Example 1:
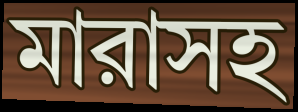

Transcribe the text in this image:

মারাসহ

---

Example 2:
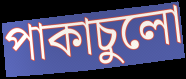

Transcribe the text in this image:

পাকাচুলো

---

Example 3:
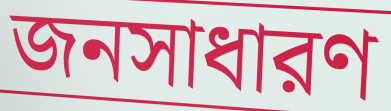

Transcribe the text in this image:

জনসাধারণ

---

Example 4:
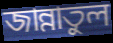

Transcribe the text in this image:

জান্নাতুল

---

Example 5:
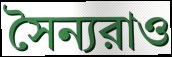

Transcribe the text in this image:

সৈন্যরাও